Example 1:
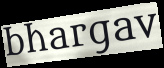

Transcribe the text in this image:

bhargav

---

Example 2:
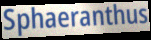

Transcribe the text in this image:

Sphaeranthus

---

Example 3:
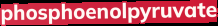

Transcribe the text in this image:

phosphoenolpyruvate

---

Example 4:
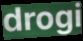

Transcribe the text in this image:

drogi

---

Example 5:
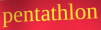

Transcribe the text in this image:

pentathlon